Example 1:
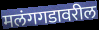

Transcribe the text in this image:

मलंगगडावरील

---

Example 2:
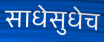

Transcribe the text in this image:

साधेसुधेच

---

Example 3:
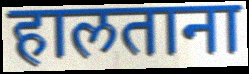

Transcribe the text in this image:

हालताना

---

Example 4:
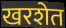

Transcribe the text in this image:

खरशेत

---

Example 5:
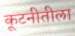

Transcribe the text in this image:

कूटनीतीला